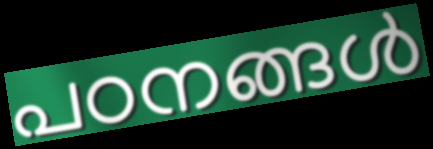
പഠനങ്ങൾ